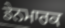
ਡੇਨਮਾਰਕ